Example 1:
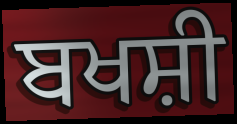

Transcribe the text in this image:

ਬਖਸ਼ੀ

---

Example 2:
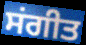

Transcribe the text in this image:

ਸਂਗੀਤ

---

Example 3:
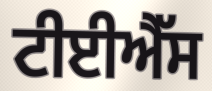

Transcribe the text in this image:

ਟੀਈਐੱਸ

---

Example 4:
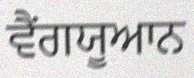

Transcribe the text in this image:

ਵੈਂਗਯੂਆਨ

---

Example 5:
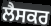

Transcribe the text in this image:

ਲੈਸਕਰ